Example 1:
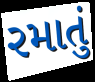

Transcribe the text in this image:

રમાતું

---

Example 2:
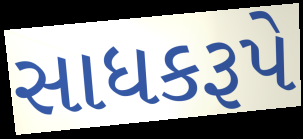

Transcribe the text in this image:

સાધકરૂપે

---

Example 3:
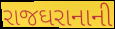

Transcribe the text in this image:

રાજઘરાનાની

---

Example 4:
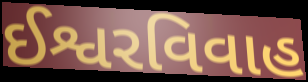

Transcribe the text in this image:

ઈશ્વરવિવાહ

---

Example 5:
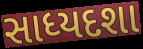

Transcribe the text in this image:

સાધ્યદશા